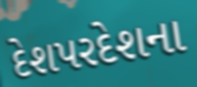
દેશપરદેશના